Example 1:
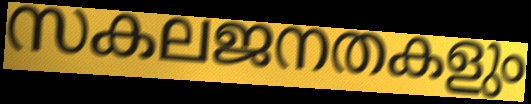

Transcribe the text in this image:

സകലജനതകളും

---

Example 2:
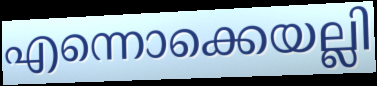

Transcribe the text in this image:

എന്നൊക്കെയല്ലി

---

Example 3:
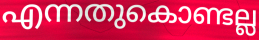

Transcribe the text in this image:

എന്നതുകൊണ്ടല്ല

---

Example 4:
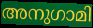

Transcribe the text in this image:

അനുഗാമി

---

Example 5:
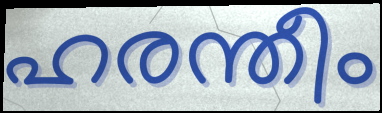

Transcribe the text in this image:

ഹരന്തീം